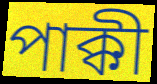
পাক্কী